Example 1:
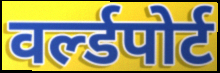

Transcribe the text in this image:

वर्ल्डपोर्ट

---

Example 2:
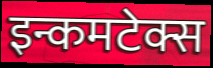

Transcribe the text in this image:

इन्कमटेक्स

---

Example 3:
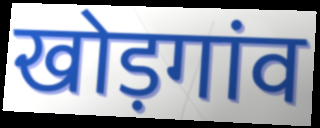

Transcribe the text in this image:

खोड़गांव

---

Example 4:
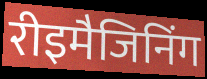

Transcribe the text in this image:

रीइमैजिनिंग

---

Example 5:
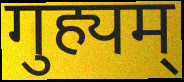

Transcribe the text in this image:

गुह्यम्